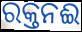
ରକ୍ତନଈ